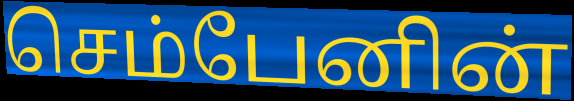
செம்பேனின்